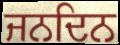
ਜਨਦਿਨ